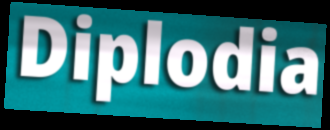
Diplodia